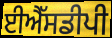
ਈਐੱਸਡੀਪੀ